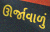
ઊર્જાવાળું